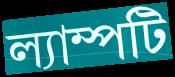
ল্যাম্পটি